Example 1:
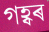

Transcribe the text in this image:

গহ্বৰ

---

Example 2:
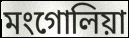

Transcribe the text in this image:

মংগোলিয়া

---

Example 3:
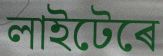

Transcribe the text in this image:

লাইটেৰে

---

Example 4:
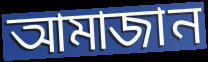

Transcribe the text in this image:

আমাজান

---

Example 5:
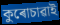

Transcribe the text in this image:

কুৰোচাৱাই